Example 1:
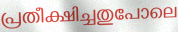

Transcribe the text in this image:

പ്രതീക്ഷിച്ചതുപോലെ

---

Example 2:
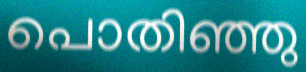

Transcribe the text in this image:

പൊതിഞ്ഞു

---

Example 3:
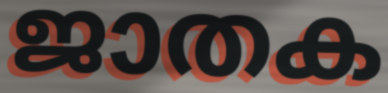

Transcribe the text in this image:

ജാതക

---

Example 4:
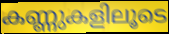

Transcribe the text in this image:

കണ്ണുകളിലൂടെ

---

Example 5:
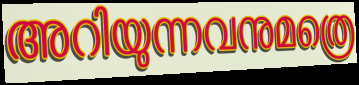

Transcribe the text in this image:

അറിയുന്നവനുമത്രെ